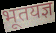
भूतयज्ञ